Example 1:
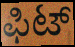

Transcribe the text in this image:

ಫಿಟ್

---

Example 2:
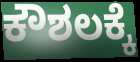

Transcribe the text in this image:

ಕೌಶಲಕ್ಕೆ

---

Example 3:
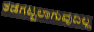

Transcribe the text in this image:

ತಡೆಗಟ್ಟಲಾಗುವುದಿಲ್ಲ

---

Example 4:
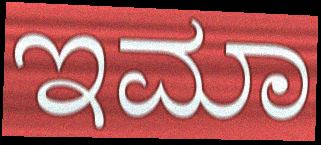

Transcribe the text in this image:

ಇಮಾ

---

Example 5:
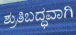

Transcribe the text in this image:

ಶ್ರುತಿಬದ್ಧವಾಗಿ